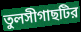
তুলসীগাছটির